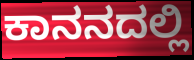
ಕಾನನದಲ್ಲಿ